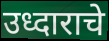
उध्दाराचे